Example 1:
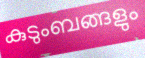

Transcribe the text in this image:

കുടുംബങ്ങളും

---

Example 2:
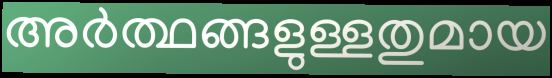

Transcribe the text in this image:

അർത്ഥങ്ങളുള്ളതുമായ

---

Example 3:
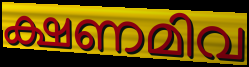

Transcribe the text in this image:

ക്ഷണമിവ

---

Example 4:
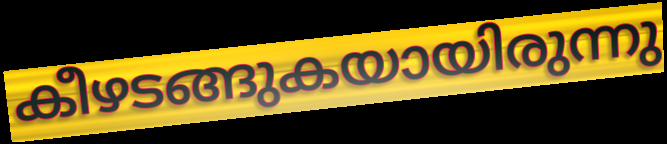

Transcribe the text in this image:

കീഴടങ്ങുകയായിരുന്നു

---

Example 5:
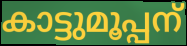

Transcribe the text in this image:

കാട്ടുമൂപ്പന്